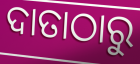
ଦାତାଠାରୁ